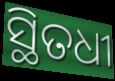
ସ୍ଥିତଧୀ